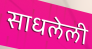
साधलेली